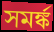
সমর্ঙ্ক